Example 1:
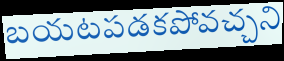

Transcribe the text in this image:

బయటపడకపోవచ్చని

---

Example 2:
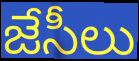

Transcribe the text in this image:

జేసీలు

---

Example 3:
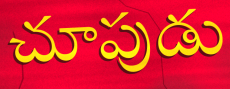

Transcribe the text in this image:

చూపుడు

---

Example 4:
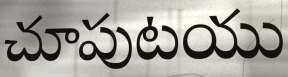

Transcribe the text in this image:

చూపుటయు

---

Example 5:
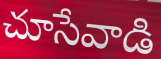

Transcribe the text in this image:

చూసేవాడి